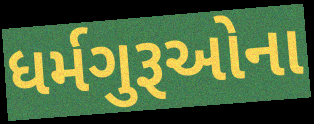
ધર્મગુરૂઓના